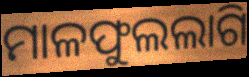
ମାଳଫୁଲଲାଗି